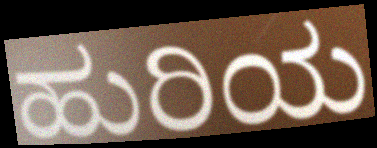
ಹುರಿಯ